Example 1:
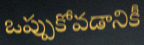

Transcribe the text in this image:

ఒప్పుకోవడానికీ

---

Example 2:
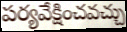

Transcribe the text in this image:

పర్యవేక్షించవచ్చు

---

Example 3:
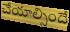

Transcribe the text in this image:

చేయాల్సిందే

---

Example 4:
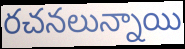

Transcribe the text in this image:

రచనలున్నాయి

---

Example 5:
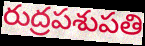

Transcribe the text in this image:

రుద్రపశుపతి